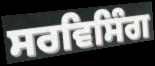
ਸਰਵਿਸਿੰਗ